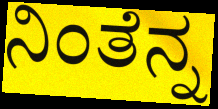
ನಿಂತೆನ್ನ